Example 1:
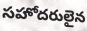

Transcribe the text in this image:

సహోదరులైన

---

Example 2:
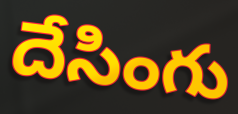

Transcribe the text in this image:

దేసింగు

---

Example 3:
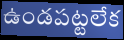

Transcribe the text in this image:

ఉండపట్టలేక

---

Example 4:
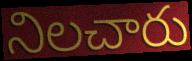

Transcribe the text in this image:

నిలచారు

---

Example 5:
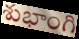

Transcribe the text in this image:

శుభాంగి